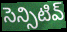
సెన్సిటివ్